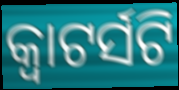
କ୍ୱାଟର୍ସଟି